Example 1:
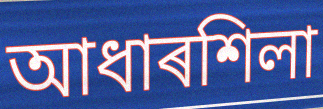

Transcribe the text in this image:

আধাৰশিলা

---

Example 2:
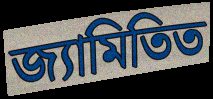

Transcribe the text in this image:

জ্যামিতিত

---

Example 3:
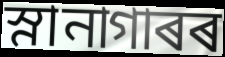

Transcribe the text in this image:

স্নানাগাৰৰ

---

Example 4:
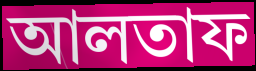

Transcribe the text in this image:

আলতাফ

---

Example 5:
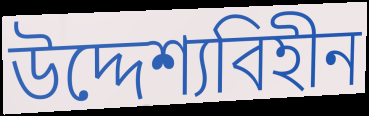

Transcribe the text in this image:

উদ্দেশ্যবিহীন